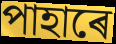
পাহাৰে